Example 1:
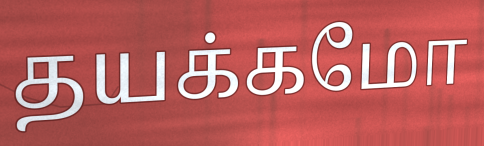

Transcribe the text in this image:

தயக்கமோ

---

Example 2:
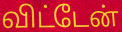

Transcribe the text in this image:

விட்டேன்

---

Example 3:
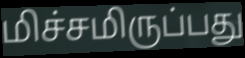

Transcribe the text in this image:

மிச்சமிருப்பது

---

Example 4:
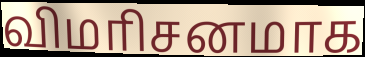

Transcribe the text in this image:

விமரிசனமாக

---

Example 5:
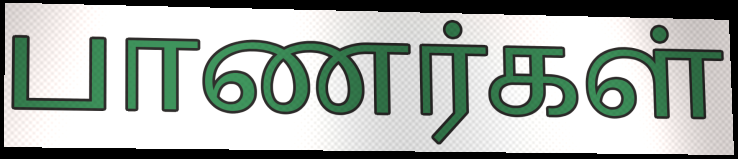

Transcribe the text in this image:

பாணர்கள்